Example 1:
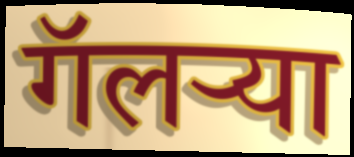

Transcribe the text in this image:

गॅलऱ्या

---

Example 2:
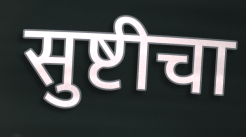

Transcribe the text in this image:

सुष्टीचा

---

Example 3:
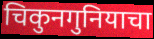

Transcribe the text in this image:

चिकुनगुनियाचा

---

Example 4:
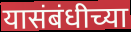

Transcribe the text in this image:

यासंबंधीच्या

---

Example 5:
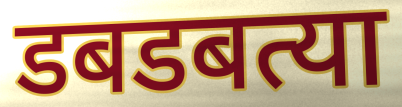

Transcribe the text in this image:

डबडबत्या